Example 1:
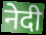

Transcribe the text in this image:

नेदी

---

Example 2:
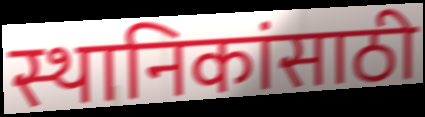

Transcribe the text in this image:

स्थानिकांसाठी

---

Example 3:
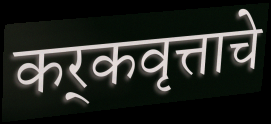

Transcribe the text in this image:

कर्कवृत्ताचे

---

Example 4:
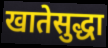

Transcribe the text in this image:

खातेसुद्धा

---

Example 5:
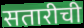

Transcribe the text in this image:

सतारीची